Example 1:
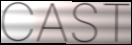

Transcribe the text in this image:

CAST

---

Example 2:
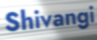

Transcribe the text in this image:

Shivangi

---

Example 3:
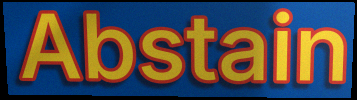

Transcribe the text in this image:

Abstain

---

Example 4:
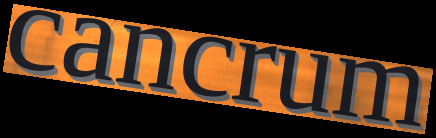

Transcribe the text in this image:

cancrum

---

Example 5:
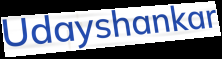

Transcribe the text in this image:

Udayshankar